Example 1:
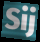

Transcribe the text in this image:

Sij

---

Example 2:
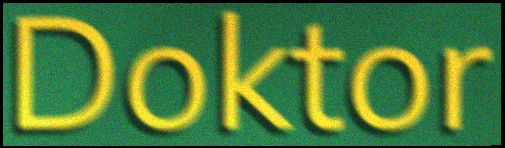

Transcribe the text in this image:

Doktor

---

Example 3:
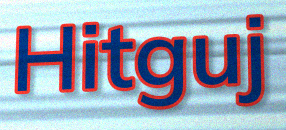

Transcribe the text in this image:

Hitguj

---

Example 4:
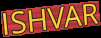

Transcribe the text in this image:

ISHVAR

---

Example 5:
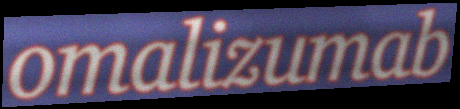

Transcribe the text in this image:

omalizumab